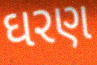
ઘરણ